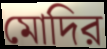
মোদির